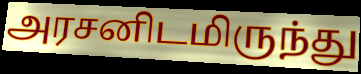
அரசனிடமிருந்து